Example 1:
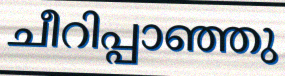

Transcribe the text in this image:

ചീറിപ്പാഞ്ഞു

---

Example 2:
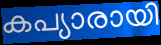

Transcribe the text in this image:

കപ്യാരായി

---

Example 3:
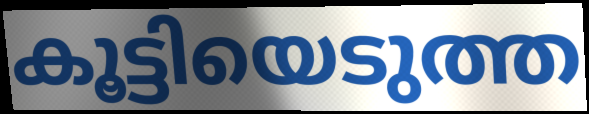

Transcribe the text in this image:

കൂട്ടിയെടുത്ത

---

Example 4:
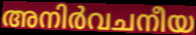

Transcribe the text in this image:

അനിർവചനീയ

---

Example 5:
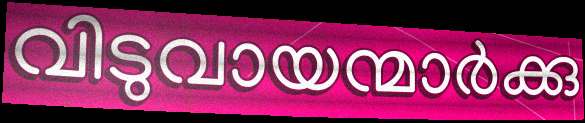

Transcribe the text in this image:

വിടുവായന്മാർക്കു